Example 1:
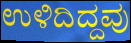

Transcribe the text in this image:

ಉಳಿದಿದ್ದವು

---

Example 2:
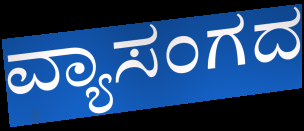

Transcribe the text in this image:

ವ್ಯಾಸಂಗದ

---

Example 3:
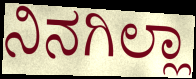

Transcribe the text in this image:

ನಿನಗಿಲ್ಲಾ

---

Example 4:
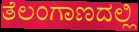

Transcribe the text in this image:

ತೆಲಂಗಾಣದಲ್ಲಿ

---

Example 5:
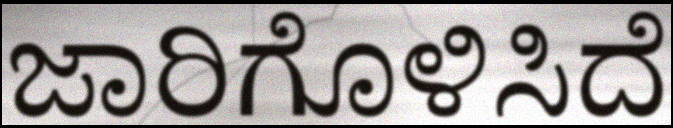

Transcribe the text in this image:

ಜಾರಿಗೊಳಿಸಿದೆ